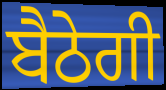
ਬੈਠੇਗੀ